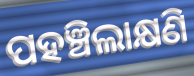
ପହଞ୍ଚିଲାକ୍ଷଣି